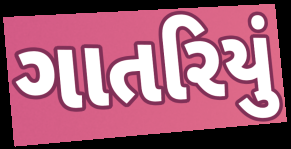
ગાતરિયું